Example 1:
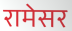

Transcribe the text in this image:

रामेसर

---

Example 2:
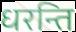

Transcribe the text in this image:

धरन्ति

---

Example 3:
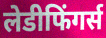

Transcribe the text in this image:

लेडीफिंगर्स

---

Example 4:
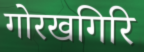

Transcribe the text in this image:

गोरखगिरि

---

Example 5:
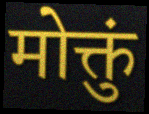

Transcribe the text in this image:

मोक्तुं